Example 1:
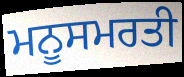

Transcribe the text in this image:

ਮਨੂਸਮਰਤੀ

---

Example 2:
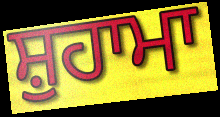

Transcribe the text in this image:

ਸ਼ੁਹਾਮਾ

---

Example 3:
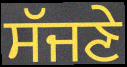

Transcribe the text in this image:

ਸੱਜਣੇ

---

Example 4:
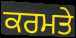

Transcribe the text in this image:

ਕਰਮਤੇ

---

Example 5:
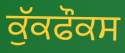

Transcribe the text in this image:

ਕੁੱਕਫੌਕਸ